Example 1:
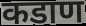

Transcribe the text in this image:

कडाण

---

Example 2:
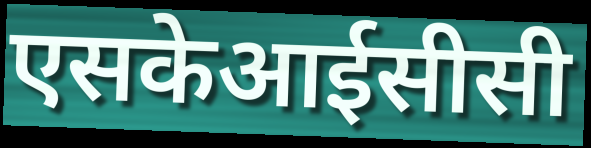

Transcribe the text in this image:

एसकेआईसीसी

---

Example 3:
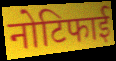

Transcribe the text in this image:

नोटिफाई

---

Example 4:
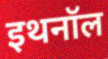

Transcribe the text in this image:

इथनॉल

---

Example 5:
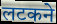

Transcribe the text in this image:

लटकने